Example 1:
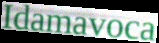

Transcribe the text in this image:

Idamavoca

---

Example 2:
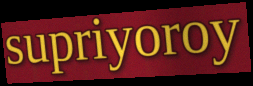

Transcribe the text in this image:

supriyoroy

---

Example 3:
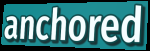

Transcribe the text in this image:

anchored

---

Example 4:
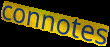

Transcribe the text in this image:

connotes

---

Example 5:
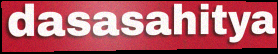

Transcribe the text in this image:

dasasahitya